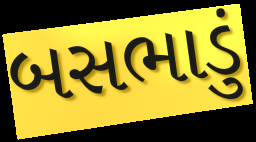
બસભાડું